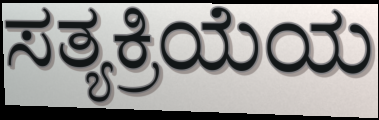
ಸತ್ಯಕ್ರಿಯೆಯ